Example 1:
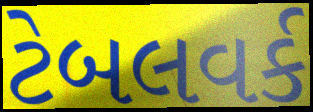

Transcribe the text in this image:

ટેબલવર્ક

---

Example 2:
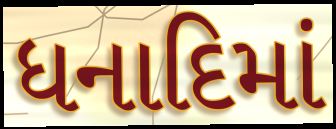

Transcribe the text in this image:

ધનાદિમાં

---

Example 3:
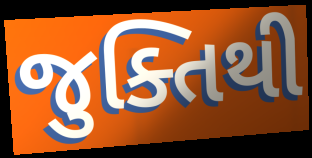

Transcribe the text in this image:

જુક્તિથી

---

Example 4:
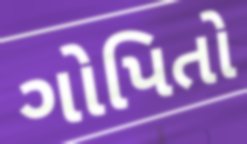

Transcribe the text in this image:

ગોપિતો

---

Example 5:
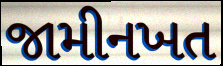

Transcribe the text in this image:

જામીનખત